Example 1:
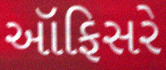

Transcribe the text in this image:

ઑફિસરે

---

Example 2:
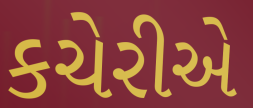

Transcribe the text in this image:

કચેરીએ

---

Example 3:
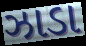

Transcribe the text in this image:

ઝાડા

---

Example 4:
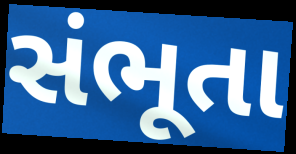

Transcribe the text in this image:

સંભૂતા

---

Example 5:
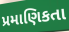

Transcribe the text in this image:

પ્રમાણિકતા